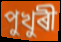
পুখুৰী